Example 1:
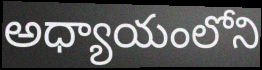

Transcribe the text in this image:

అధ్యాయంలోని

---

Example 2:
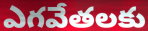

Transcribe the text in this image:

ఎగవేతలకు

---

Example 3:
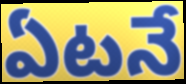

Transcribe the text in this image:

ఏటనే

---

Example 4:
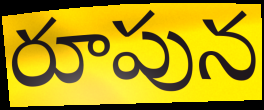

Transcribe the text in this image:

రూపున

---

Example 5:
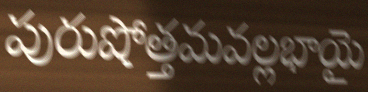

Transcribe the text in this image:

పురుషోత్తమవల్లభాయై